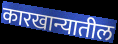
कारखान्यातील